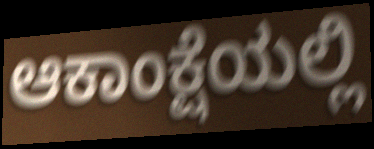
ಆಕಾಂಕ್ಷೆಯಲ್ಲಿ